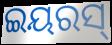
ଇୟରସ୍